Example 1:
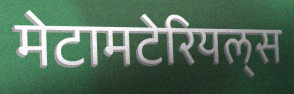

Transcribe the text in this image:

मेटामटेरियल्स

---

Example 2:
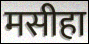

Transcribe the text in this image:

मसीहा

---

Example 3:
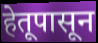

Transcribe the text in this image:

हेतूपासून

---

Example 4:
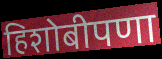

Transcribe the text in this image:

हिशोबीपणा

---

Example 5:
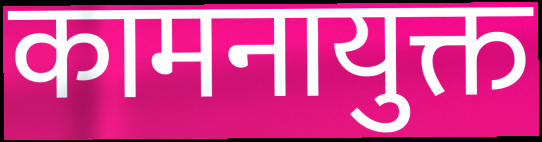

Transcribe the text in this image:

कामनायुक्त